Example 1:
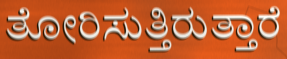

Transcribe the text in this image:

ತೋರಿಸುತ್ತಿರುತ್ತಾರೆ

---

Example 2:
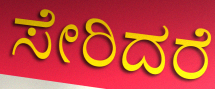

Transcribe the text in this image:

ಸೇರಿದರೆ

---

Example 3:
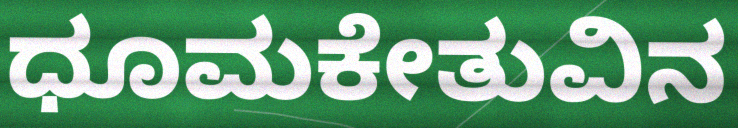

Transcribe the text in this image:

ಧೂಮಕೇತುವಿನ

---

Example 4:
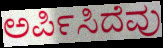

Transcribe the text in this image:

ಅರ್ಪಿಸಿದೆವು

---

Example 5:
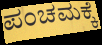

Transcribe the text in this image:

ಪಂಚಮಕ್ಕೆ